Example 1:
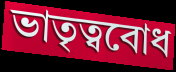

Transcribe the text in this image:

ভাতৃত্ববোধ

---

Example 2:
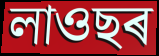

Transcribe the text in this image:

লাওছৰ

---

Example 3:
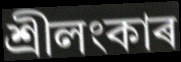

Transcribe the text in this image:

শ্ৰীলংকাৰ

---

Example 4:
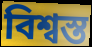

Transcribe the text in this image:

বিশ্বস্ত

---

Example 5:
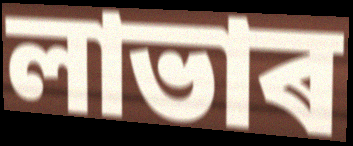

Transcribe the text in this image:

লাভাৰ